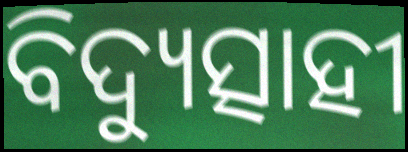
ବିଦ୍ୟୁତ୍ସାହୀ